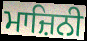
ਮਾਜ਼ਿਨੀ